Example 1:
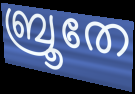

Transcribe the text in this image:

ബ്രൂതേ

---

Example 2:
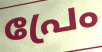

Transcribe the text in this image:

പ്രേം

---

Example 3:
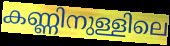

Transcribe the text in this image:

കണ്ണിനുള്ളിലെ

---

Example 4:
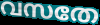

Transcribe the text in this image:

വസതേ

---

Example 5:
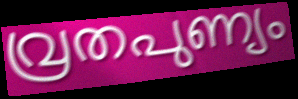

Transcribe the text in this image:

വ്രതപുണ്യം